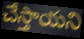
చేస్తాయని